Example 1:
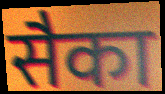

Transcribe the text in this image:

सैका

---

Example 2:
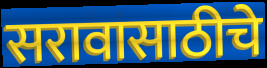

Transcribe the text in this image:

सरावासाठीचे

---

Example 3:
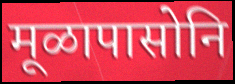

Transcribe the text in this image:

मूळापासोनि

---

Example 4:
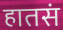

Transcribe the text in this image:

हातसं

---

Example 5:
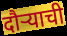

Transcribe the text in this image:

दौर्‍याची